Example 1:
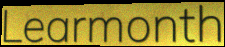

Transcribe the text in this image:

Learmonth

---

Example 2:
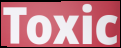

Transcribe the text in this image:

Toxic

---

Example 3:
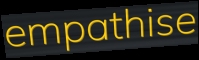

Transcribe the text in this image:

empathise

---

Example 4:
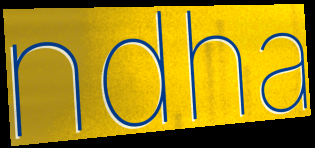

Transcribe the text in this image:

ndha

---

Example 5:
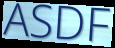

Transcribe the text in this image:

ASDF